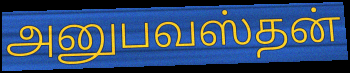
அனுபவஸ்தன்